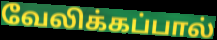
வேலிக்கப்பால்